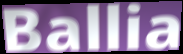
Ballia